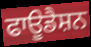
ਫਾਊਡੈਸ਼ਨ